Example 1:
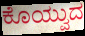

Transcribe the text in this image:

ಕೊಯ್ವುದ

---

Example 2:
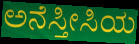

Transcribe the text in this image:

ಅನೆಸ್ತೀಸಿಯ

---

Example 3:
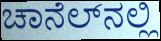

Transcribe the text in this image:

ಚಾನೆಲ್‌ನಲ್ಲಿ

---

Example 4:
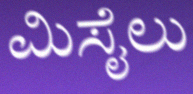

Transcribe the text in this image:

ಮಿಸೈಲು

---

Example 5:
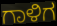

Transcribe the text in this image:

ಗಾಳಿಗ